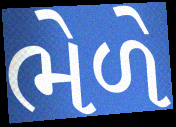
ભેળે